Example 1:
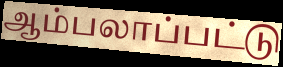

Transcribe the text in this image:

ஆம்பலாப்பட்டு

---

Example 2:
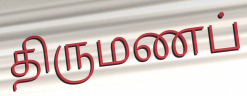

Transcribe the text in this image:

திருமணப்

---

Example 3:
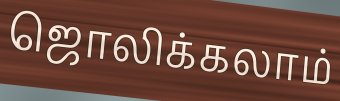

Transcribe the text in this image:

ஜொலிக்கலாம்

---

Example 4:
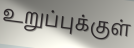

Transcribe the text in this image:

உறுப்புக்குள்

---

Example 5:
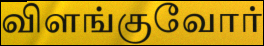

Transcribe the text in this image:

விளங்குவோர்